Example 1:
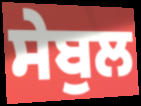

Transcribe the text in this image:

ਸੇਬੁਲ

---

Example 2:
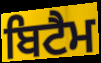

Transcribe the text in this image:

ਬਿਟੈਮ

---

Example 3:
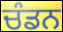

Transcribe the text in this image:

ਚੰਡਨ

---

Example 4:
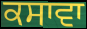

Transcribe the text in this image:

ਕਸਾਵਾ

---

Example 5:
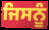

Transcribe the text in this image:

ਜਿਸਨੂੰ